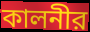
কালনীর